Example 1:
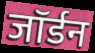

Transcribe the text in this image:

जॉर्डन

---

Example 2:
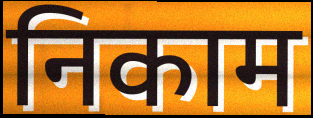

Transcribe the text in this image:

निकाम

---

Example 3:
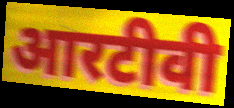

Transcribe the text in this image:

आरटीवी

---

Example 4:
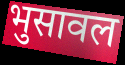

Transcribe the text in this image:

भुसावल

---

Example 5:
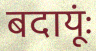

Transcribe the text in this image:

बदायूंः